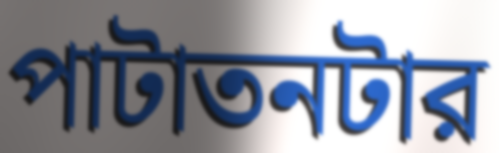
পাটাতনটার